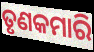
ତୃଣକମାରି